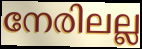
നേരിലല്ല